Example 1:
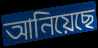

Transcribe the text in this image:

আনিয়েছে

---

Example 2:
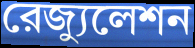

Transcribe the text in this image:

রেজ্যুলেশন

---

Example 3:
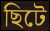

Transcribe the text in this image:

ছিটে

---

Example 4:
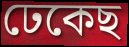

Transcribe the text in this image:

ঢেকেছ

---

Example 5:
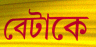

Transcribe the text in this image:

বেটাকে